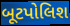
બૂટપોલિશ